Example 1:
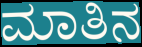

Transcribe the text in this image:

ಮಾತಿನ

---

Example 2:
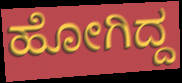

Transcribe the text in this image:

ಹೋಗಿದ್ದ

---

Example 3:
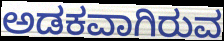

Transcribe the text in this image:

ಅಡಕವಾಗಿರುವ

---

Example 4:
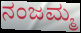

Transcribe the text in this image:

ನಂಜಮ್ಮ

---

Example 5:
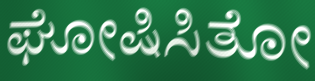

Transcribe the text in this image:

ಘೋಷಿಸಿತೋ